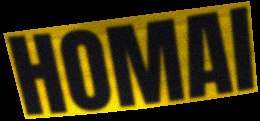
HOMAI